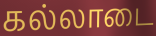
கல்லாடை